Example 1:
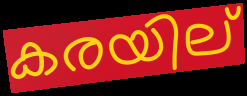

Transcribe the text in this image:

കരയില്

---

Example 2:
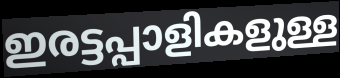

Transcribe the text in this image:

ഇരട്ടപ്പാളികളുള്ള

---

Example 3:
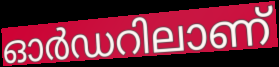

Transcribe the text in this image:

ഓർഡറിലാണ്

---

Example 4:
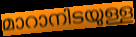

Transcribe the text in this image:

മാറാനിടയുള്ള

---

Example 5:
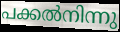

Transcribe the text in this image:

പക്കൽനിന്നു